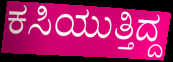
ಕಸಿಯುತ್ತಿದ್ದ